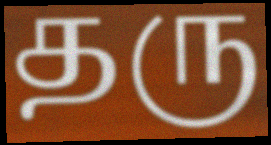
தரு